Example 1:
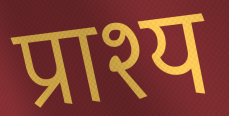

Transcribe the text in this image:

प्राश्य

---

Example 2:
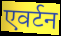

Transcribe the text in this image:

एवर्टन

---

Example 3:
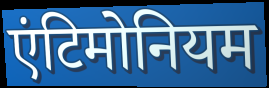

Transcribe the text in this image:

एंटिमोनियम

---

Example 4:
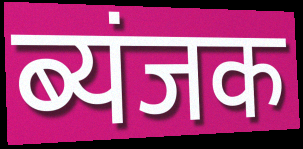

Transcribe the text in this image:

ब्यंजक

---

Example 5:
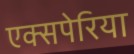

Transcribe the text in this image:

एक्सपेरिया